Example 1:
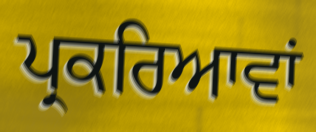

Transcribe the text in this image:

ਪ੍ਰਕਰਿਆਵਾਂ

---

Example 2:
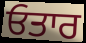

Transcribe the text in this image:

ਓਤਾਰ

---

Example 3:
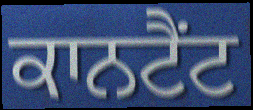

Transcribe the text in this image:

ਕਾਨਟੈਂਟ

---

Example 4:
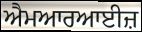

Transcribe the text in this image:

ਐਮਆਰਆਈਜ਼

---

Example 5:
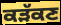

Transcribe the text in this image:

ਕੜੱਕਣ